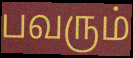
பவரும்